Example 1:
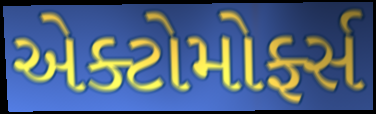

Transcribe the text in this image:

એક્ટોમોર્ફ્સ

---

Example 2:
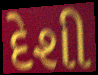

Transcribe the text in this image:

દેશી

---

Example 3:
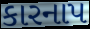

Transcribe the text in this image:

કારનાપ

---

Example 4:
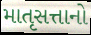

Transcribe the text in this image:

માતૃસત્તાનો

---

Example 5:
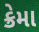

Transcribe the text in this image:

ક્રેમા